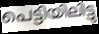
പെട്ടിയിലിട്ടു